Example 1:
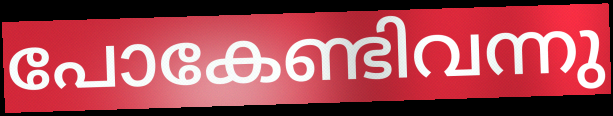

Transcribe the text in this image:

പോകേണ്ടിവന്നു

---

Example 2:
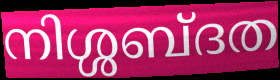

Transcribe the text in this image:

നിശ്ശബ്ദത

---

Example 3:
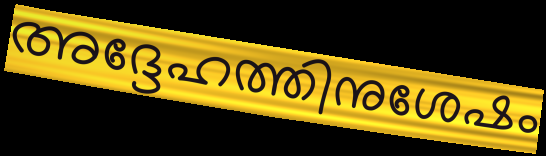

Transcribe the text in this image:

അദ്ദേഹത്തിനുശേഷം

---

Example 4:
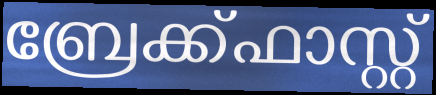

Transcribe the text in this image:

ബ്രേക്ക്ഫാസ്റ്റ്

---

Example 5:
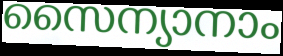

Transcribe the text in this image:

സൈന്യാനാം